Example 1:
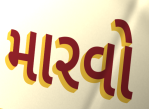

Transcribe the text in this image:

મારવો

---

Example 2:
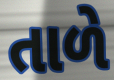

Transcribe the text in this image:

તાળે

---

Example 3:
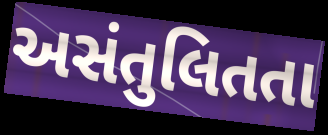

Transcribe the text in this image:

અસંતુલિતતા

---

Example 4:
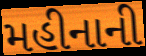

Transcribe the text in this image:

મહીનાની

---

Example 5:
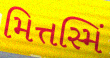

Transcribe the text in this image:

મિત્તસ્મિં